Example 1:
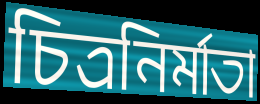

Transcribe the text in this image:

চিত্ৰনিৰ্মাতা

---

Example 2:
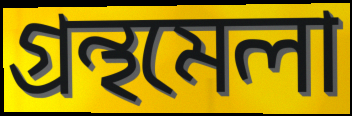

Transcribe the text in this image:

গ্ৰন্থমেলা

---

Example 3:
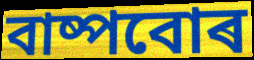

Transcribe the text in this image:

বাষ্পবোৰ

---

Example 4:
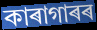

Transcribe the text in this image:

কাৰাগাৰৰ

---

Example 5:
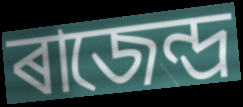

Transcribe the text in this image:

ৰাজেন্দ্ৰ